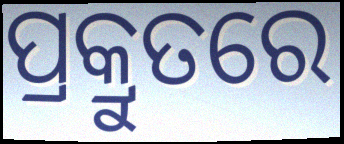
ପ୍ରକ୍ରୁତରେ